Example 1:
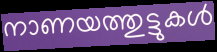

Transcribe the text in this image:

നാണയത്തുട്ടുകൾ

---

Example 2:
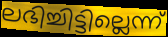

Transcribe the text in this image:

ലഭിച്ചിട്ടില്ലെന്ന്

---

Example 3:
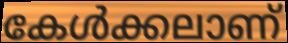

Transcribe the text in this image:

കേൾക്കലാണ്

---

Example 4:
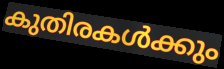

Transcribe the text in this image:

കുതിരകൾക്കും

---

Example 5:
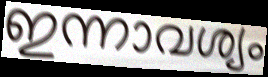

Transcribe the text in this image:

ഇന്നാവശ്യം